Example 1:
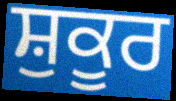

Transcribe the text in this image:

ਸ਼ੁਕੂਰ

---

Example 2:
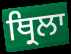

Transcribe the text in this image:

ਥ੍ਰਿਲਾ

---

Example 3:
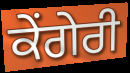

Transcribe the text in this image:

ਕੇਂਗੇਰੀ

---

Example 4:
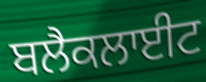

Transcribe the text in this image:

ਬਲੈਕਲਾਈਟ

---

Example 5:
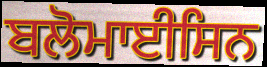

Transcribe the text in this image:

ਬਲੋਮਾਈਸਿਨ